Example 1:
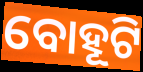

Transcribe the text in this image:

ବୋହୂଟି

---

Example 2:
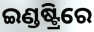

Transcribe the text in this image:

ଇଣ୍ଡଷ୍ଟ୍ରିରେ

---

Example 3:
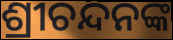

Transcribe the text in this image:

ଶ୍ରୀଚନ୍ଦନଙ୍କ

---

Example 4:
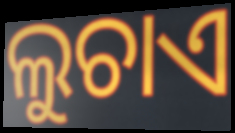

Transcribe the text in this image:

ଲୁଚାଏ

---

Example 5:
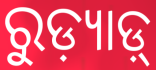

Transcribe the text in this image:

ରୁଡ଼୍ୟାଡ଼୍